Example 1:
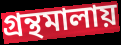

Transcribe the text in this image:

গ্রন্থমালায়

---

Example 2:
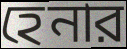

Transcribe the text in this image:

হেনার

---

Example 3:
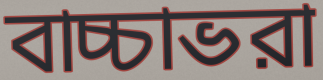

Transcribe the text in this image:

বাচ্চাভরা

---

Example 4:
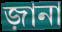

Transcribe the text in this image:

জ়ানা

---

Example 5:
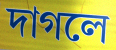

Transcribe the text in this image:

দাগলে